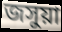
জসুয়া